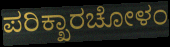
ಪರಿಕ್ಖಾರಚೋಳಂ